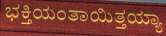
ಭಕ್ತಿಯಂತಾಯಿತ್ತಯ್ಯಾ